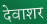
देवाशर